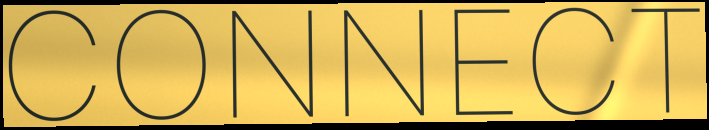
CONNECT